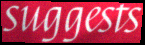
suggests